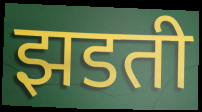
झडती